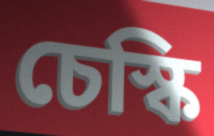
চেস্কি